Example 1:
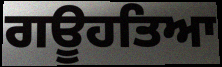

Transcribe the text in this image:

ਗਊਹਤਿਆ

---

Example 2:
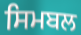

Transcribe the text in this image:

ਸਿਮਬਲ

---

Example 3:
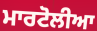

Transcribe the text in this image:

ਮਾਰਟੋਲੀਆ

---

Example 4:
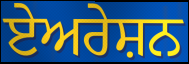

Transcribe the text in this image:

ਏਅਰੇਸ਼ਨ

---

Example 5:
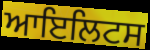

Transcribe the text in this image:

ਆਇਲਿਟਸ